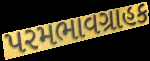
પરમભાવગ્રાહક